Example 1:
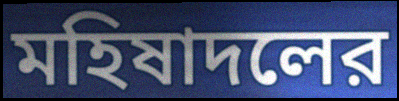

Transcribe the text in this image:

মহিষাদলের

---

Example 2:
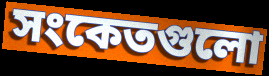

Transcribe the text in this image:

সংকেতগুলো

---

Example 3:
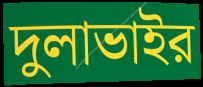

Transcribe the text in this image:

দুলাভাইর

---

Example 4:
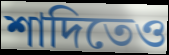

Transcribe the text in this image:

শাদিতেও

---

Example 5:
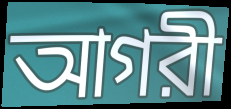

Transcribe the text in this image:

আগরী